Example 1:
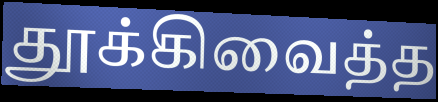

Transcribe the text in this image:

தூக்கிவைத்த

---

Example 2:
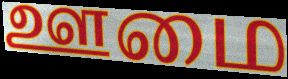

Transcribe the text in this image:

ஊமை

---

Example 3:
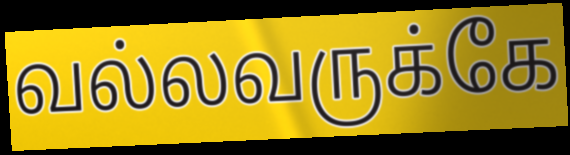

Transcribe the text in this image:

வல்லவருக்கே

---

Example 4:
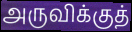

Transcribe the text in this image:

அருவிக்குத்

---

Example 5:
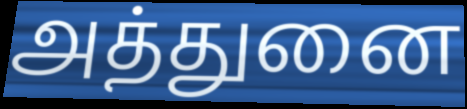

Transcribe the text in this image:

அத்துனை